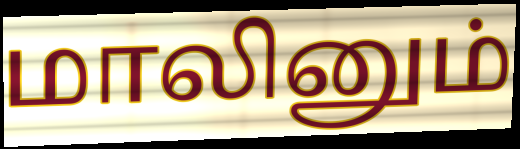
மாலினும்